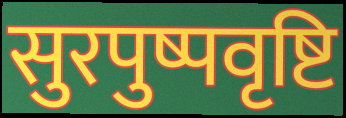
सुरपुष्पवृष्टि